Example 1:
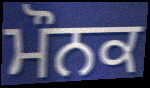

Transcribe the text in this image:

ਮੌਨਕ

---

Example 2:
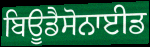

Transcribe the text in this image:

ਬਿਊਡੈਸੋਨਾਈਡ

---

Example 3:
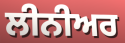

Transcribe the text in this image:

ਲੀਨੀਅਰ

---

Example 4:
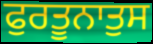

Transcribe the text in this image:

ਫੁਰਤੂਨਾਤੁਸ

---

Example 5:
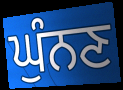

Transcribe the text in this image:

ਘੁੰਨਣ